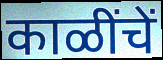
काळींचें